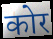
कोर